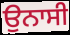
ਉਨਾਸੀ